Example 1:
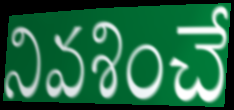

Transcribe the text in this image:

నివశించే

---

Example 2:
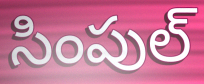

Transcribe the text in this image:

సింపుల్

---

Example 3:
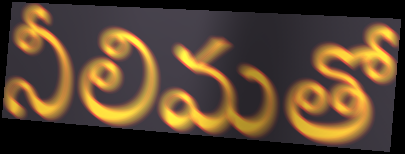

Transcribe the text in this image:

నీలిమతో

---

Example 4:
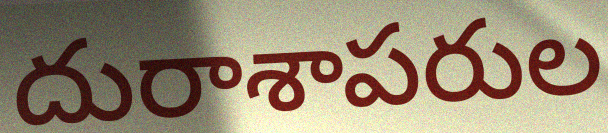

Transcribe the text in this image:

దురాశాపరుల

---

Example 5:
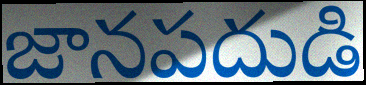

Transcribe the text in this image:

జానపదుడి